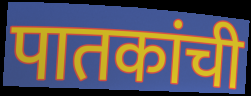
पातकांची